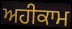
ਅਹੀਕਾਮ